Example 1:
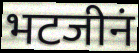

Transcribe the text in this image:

भटजीनं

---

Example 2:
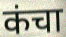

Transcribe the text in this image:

कंचा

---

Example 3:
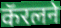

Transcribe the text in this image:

कॅरलने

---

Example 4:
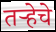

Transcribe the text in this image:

तर्‍हेचे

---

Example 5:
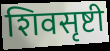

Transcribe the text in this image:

शिवसृष्टी